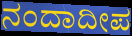
ನಂದಾದೀಪ